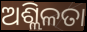
ଅଶ୍ଲିଳତା